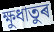
ক্ষুধাতুৰ